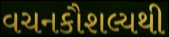
વચનકૌશલ્યથી